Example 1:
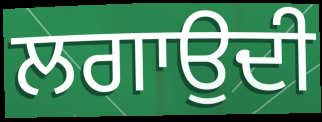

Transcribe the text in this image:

ਲਗਾਉਦੀ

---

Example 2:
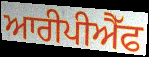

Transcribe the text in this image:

ਆਰੀਪੀਐੱਫ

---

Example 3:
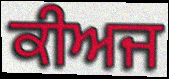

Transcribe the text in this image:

ਕੀਅਜ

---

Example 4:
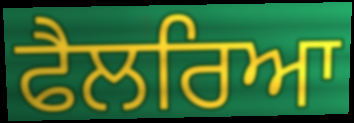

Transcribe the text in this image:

ਫੈਲਰਿਆ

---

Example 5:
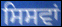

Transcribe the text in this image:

ਸਿਸਵਾਂ